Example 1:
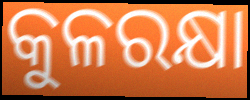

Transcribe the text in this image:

କୁଳରକ୍ଷା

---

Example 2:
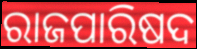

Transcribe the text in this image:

ରାଜପାରିଷଦ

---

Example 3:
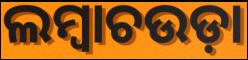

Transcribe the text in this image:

ଲମ୍ୱାଚଉଡ଼ା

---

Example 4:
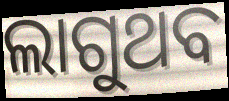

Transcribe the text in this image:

ଲାଗୁଥବ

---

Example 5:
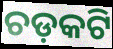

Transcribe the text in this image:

ଚଡ଼କଟି